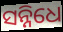
ସନ୍ନିଧେ